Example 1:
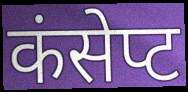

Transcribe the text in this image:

कंसेप्ट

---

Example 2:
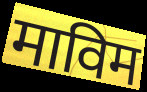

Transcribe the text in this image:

माविम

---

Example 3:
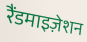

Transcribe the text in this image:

रैंडमाइज़ेशन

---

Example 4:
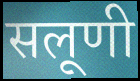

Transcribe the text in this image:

सलूणी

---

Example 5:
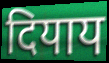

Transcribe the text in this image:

दियाय